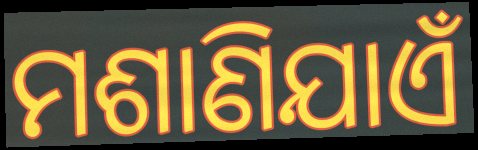
ମଶାଣିଯାଏଁ